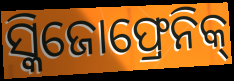
ସ୍କିଜୋଫ୍ରେନିକ୍